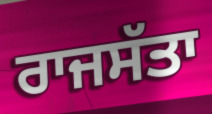
ਰਾਜਸੱਤਾ